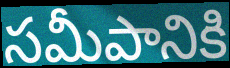
సమీపానికి